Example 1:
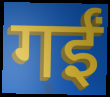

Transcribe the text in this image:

गईं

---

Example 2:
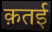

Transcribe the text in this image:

क़तई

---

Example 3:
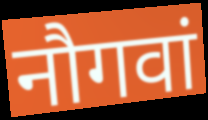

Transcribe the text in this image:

नौगवां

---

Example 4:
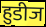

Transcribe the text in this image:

हुडीज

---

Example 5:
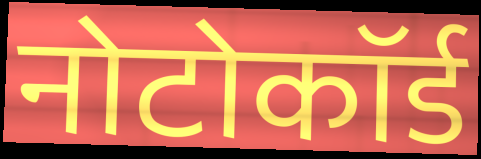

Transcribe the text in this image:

नोटोकॉर्ड